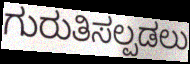
ಗುರುತಿಸಲ್ಪಡಲು